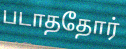
படாததோர்